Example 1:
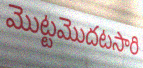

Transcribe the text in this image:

మొట్టమొదటసారి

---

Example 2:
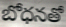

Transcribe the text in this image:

బోధనతో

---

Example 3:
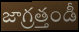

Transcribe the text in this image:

జాగ్రత్తండీ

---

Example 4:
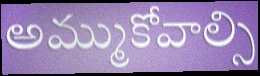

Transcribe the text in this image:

అమ్ముకోవాల్సి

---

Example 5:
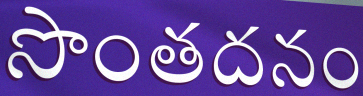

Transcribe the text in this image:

సొంతదనం